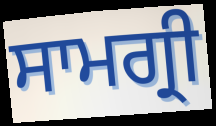
ਸਾਮਗ੍ਰੀ